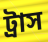
ট্রাস